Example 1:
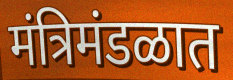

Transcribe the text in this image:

मंत्रिमंडळात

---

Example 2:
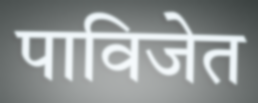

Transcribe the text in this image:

पाविजेत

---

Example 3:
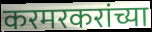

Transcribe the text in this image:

करमरकरांच्या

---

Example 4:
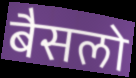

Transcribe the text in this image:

बैसलो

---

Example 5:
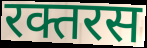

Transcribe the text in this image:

रक्तरस